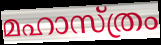
മഹാസ്ത്രം